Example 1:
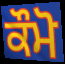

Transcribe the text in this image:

ਕੌਮੋ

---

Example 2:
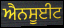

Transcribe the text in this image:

ਐਨਸੂਈਟ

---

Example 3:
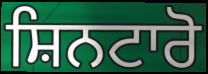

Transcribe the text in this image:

ਸ਼ਿਨਟਾਰੋ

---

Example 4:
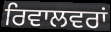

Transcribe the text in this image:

ਰਿਵਾਲਵਰਾਂ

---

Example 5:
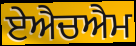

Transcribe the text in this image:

ਏਐਚਐਮ